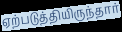
ஏற்படுத்தியிருந்தார்